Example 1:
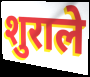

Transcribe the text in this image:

शुराले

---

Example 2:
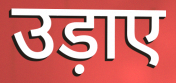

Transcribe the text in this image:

उड़ाए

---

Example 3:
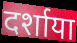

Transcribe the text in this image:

दर्शाया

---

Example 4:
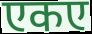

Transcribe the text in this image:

एकए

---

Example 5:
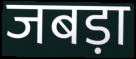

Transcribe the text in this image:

जबड़ा